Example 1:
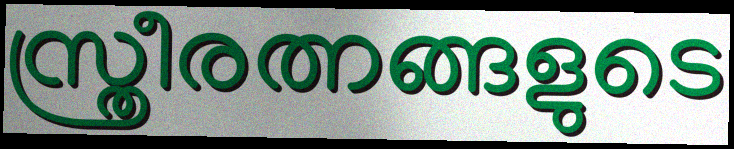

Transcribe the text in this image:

സ്ത്രീരത്നങ്ങളുടെ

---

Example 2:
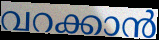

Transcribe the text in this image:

വറക്കാൻ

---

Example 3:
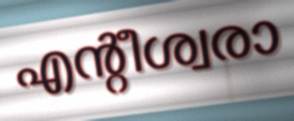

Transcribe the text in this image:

എന്റീശ്വരാ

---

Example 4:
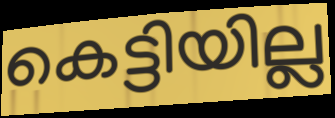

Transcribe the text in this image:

കെട്ടിയില്ല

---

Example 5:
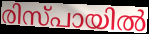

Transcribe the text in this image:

രിസ്പായിൽ